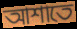
আশাতে